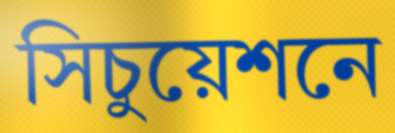
সিচুয়েশনে